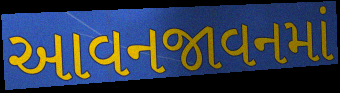
આવનજાવનમાં